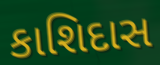
કાશિદાસ